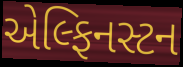
એલ્ફિનસ્ટન